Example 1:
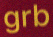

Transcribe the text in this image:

grb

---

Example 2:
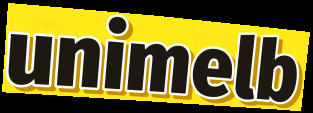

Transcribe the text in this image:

unimelb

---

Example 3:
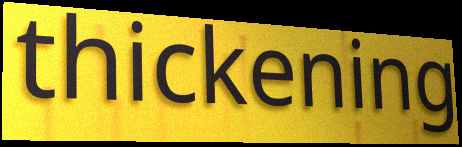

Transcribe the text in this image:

thickening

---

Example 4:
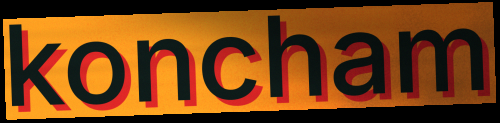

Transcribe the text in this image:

koncham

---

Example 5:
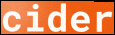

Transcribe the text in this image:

cider